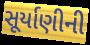
સૂર્યાણીની